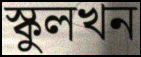
স্কুলখন